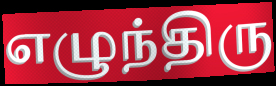
எழுந்திரு